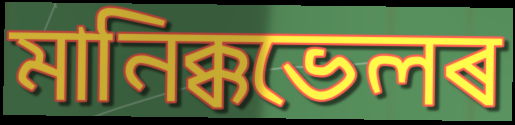
মানিক্কভেলৰ